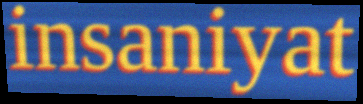
insaniyat